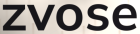
zvose